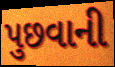
પુછવાની